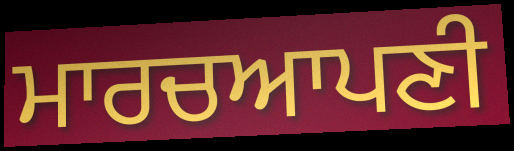
ਮਾਰਚਆਪਣੀ